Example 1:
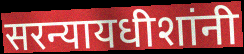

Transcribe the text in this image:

सरन्यायधीशांनी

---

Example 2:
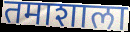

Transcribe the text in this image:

तमाशाला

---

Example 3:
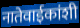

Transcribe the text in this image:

नातेवाईकांशी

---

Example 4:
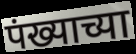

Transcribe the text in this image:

पंख्याच्या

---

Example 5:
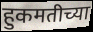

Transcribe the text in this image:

हुकमतीच्या